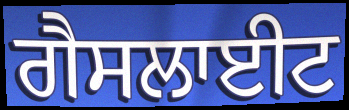
ਗੈਸਲਾਈਟ